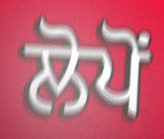
ਲੋਪੋਂ